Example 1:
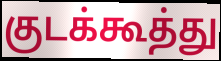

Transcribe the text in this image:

குடக்கூத்து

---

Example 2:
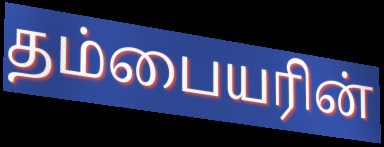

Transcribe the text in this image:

தம்பையரின்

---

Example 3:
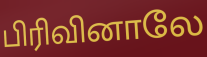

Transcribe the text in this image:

பிரிவினாலே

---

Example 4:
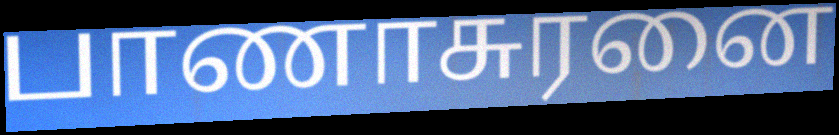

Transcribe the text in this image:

பாணாசுரனை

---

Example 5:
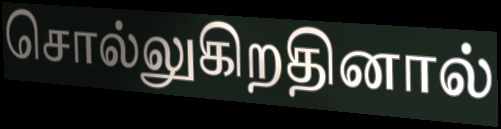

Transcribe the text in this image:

சொல்லுகிறதினால்